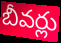
బీవర్లు